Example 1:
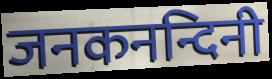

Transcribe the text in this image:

जनकनन्दिनी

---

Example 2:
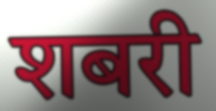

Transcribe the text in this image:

शबरी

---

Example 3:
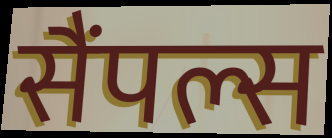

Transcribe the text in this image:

सैंपल्स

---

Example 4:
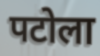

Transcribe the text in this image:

पटोला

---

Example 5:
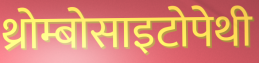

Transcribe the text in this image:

थ्रोम्बोसाइटोपेथी